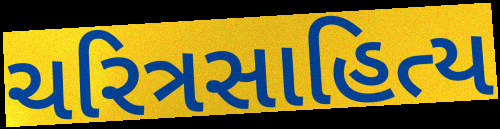
ચરિત્રસાહિત્ય